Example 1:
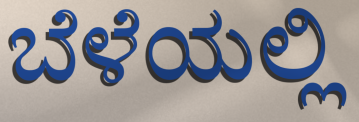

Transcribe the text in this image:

ಬೆಳೆಯಲ್ಲಿ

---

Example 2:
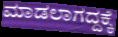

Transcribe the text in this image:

ಮಾಡಲಾಗದ್ದಕ್ಕೆ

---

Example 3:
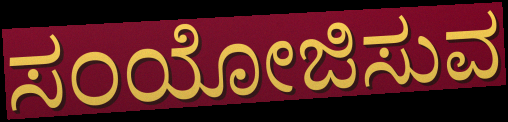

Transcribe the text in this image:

ಸಂಯೋಜಿಸುವ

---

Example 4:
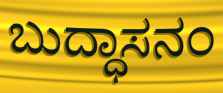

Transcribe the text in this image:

ಬುದ್ಧಾಸನಂ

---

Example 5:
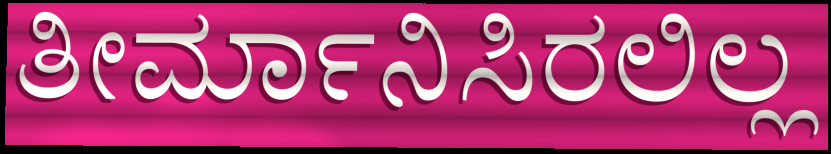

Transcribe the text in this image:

ತೀರ್ಮಾನಿಸಿರಲಿಲ್ಲ